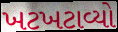
ખટખટાવ્યો